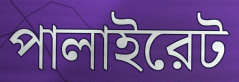
পালাইরেট